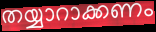
തയ്യാറാക്കണം